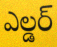
ఎల్డర్